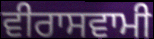
ਵੀਰਾਸਵਾਮੀ